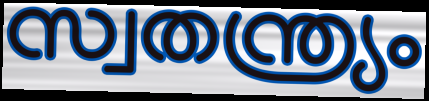
സ്വതന്ത്ര്യം